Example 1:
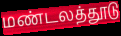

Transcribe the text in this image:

மண்டலத்தூடு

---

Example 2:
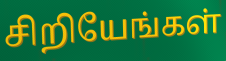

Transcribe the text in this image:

சிறியேங்கள்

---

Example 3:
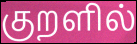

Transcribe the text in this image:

குறளில்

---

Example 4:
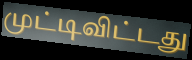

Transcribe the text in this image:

முட்டிவிட்டது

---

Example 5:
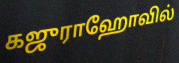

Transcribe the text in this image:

கஜுராஹோவில்